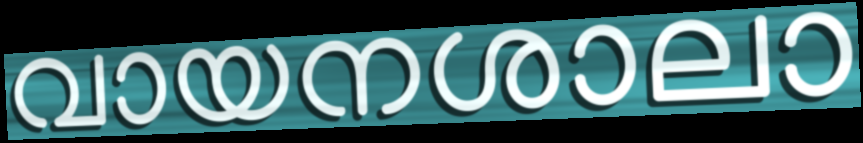
വായനശാലാ